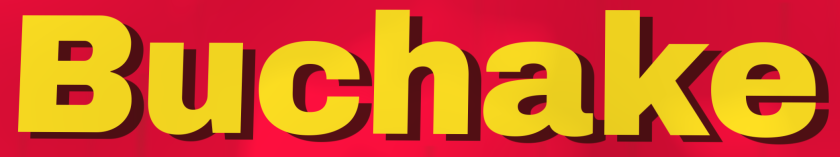
Buchake